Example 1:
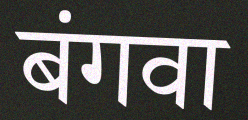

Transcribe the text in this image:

बंगवा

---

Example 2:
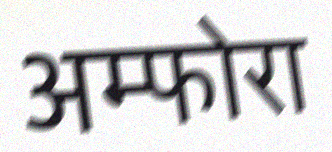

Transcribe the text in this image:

अम्फोरा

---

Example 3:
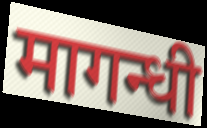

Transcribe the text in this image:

मागन्धी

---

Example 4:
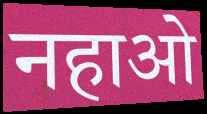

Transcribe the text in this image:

नहाओ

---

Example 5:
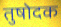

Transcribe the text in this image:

तुषोदक